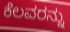
ಕೆಲವರನ್ನು